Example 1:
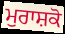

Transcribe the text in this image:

ਮੁਰਾਸ਼ਕੋ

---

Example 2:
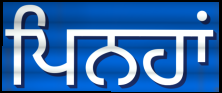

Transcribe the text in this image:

ਪਿਨਹਾਂ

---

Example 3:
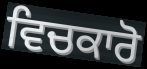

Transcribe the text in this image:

ਵਿਚਕਾਰੋ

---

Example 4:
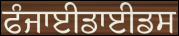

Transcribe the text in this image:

ਫੰਜਾਈਡਾਈਡਸ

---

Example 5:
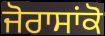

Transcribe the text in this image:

ਜੋਰਾਸਾਂਕੋ